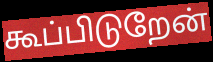
கூப்பிடுறேன்